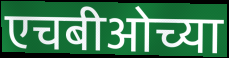
एचबीओच्या